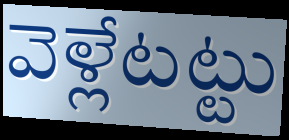
వెళ్లేటట్టు